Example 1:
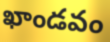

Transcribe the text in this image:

ఖాండవం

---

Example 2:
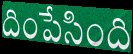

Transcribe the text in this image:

దింపేసింది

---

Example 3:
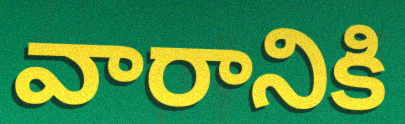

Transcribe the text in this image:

వారానికి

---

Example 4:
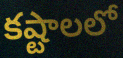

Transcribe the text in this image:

కష్టాలలో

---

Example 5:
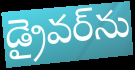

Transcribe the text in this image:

డ్రైవర్‌ను